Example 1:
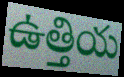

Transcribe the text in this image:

ఉత్తియ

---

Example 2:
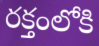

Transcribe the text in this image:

రక్తంలోకి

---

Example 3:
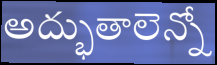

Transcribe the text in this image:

అద్భుతాలెన్నో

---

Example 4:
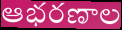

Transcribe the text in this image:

ఆభరణాల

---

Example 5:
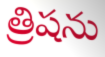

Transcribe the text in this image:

త్రిషను